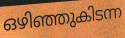
ഒഴിഞ്ഞുകിടന്ന